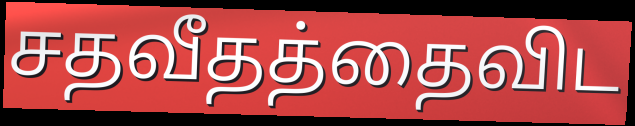
சதவீதத்தைவிட